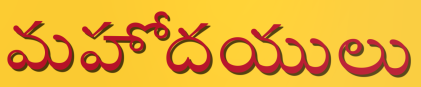
మహోదయులు